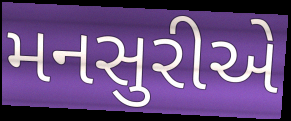
મનસુરીએ